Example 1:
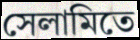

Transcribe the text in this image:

সেলামিতে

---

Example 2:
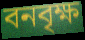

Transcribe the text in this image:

বনবৃক্ষ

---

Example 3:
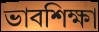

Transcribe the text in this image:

ভাবশিক্ষা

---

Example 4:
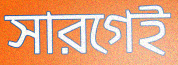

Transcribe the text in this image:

সারগেই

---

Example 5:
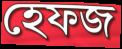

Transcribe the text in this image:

হেফজ